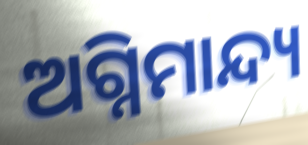
ଅଗ୍ନିମାନ୍ଦ୍ୟ